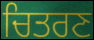
ਚਿਤਰਣ